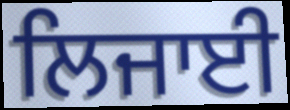
ਲਿਜਾਈ